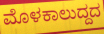
ಮೊಳಕಾಲುದ್ದದ